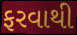
ફરવાથી